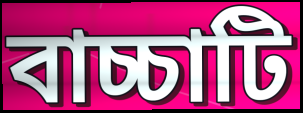
বাচ্চাটি